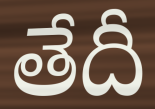
తేదీ